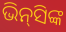
ଭିନ୍‍ସିଙ୍କ